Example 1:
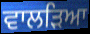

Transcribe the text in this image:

ਵਾਲੜਿਆ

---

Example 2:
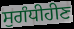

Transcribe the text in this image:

ਸੁਗੰਧੀਹੀਣ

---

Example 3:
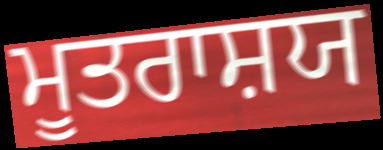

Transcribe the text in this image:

ਮੂਤਰਾਸ਼ਯ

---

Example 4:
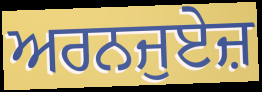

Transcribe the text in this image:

ਅਰਨਜੁਏਜ਼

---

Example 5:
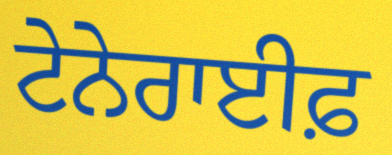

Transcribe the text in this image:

ਟੇਨੇਰਾਈਫ਼